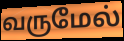
வருமேல்